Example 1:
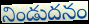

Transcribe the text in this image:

నిండుదనం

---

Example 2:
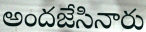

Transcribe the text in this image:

అందజేసినారు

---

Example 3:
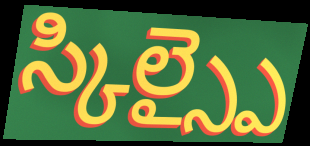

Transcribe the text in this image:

స్కిల్స్పై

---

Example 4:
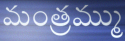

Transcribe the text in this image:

మంత్రమ్ము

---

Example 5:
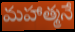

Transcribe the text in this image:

మహాత్మనే